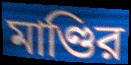
মাণ্ডির